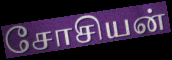
சோசியன்